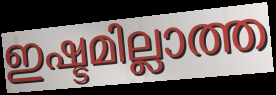
ഇഷ്ടമില്ലാത്ത